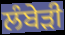
ਲੰਬੇੜੀ